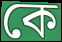
কে